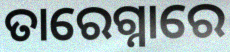
ତାରେଗ୍ନାରେ